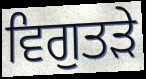
ਵਿਗੁਤੜੇ